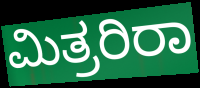
ಮಿತ್ರರಿರಾ